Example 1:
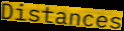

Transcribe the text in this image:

Distances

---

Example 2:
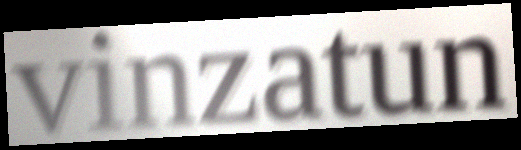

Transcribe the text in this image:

vinzatun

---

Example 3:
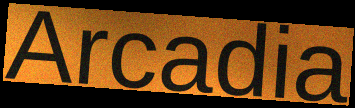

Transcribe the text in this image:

Arcadia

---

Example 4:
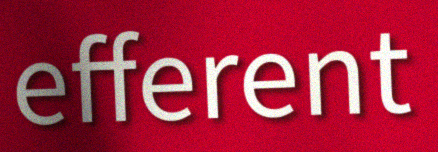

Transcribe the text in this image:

efferent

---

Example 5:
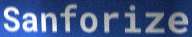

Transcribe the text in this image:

Sanforize